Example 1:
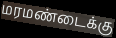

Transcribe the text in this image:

மரமண்டைக்கு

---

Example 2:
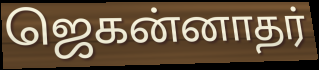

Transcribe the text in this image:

ஜெகன்னாதர்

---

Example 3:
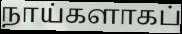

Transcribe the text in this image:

நாய்களாகப்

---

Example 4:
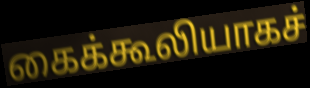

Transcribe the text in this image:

கைக்கூலியாகச்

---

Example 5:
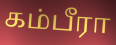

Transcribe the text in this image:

கம்பீரா